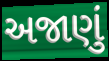
અજાણું